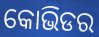
କୋଭିଡର